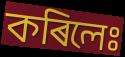
কৰিলেঃ